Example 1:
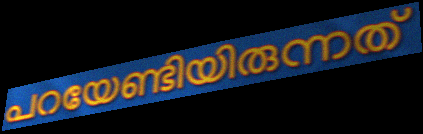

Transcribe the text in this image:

പറയേണ്ടിയിരുന്നത്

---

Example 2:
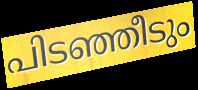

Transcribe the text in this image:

പിടഞ്ഞീടും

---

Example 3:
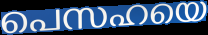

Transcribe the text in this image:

പെസഹയെ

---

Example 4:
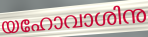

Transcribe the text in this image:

യഹോവാശിനു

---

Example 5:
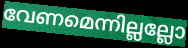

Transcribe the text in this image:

വേണമെന്നില്ലല്ലോ